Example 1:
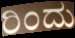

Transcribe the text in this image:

ರಿಂದು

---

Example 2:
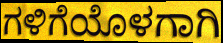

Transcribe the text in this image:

ಗಳಿಗೆಯೊಳಗಾಗಿ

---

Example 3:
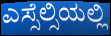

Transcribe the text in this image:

ಎಸ್ಸೆಲ್ಸಿಯಲ್ಲಿ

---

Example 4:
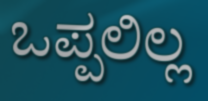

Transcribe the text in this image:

ಒಪ್ಪಲಿಲ್ಲ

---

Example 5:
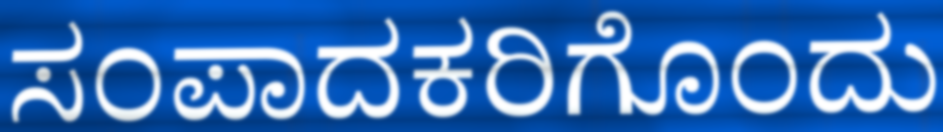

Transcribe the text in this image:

ಸಂಪಾದಕರಿಗೊಂದು